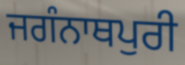
ਜਗੰਨਾਥਪੁਰੀ